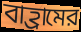
বাহ্রামের